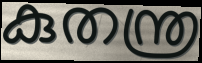
കുതന്ത്ര